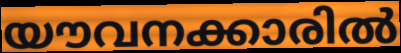
യൗവനക്കാരിൽ